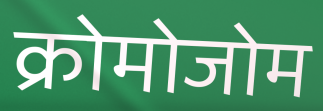
क्रोमोजोम